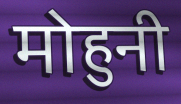
मोहुनी